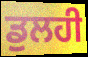
ਡੁਲਹੀ